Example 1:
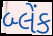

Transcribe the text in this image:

બ્લેંક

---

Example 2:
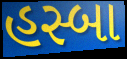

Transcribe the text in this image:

હસ્બા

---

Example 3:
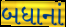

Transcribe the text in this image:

બધાનાં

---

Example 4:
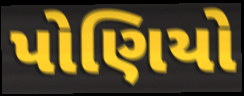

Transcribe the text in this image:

પોણિયો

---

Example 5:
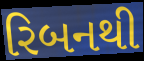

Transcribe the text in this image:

રિબનથી